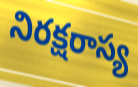
నిరక్షరాస్య